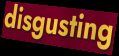
disgusting